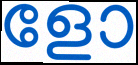
ളോ